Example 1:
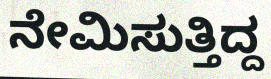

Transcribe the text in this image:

ನೇಮಿಸುತ್ತಿದ್ದ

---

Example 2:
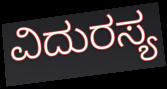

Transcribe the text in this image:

ವಿದುರಸ್ಯ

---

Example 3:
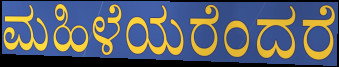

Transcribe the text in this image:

ಮಹಿಳೆಯರೆಂದರೆ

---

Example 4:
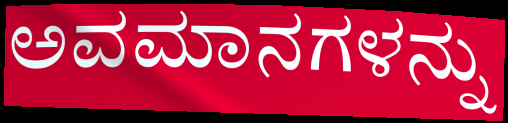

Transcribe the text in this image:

ಅವಮಾನಗಳನ್ನು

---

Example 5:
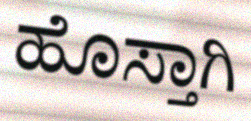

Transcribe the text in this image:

ಹೊಸ್ತಾಗಿ